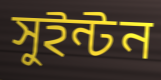
সুইন্টন